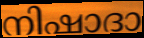
നിഷാദാ